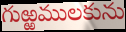
గుఱ్ఱములకును